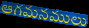
ఆగమనములు